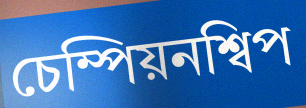
চেম্পিয়নশ্বিপ